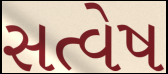
સત્વેષ